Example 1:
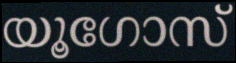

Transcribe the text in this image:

യൂഗോസ്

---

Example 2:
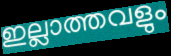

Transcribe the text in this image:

ഇല്ലാത്തവളും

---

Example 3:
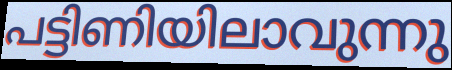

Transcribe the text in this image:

പട്ടിണിയിലാവുന്നു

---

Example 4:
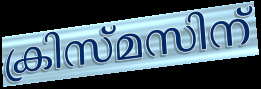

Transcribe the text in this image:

ക്രിസ്മസിന്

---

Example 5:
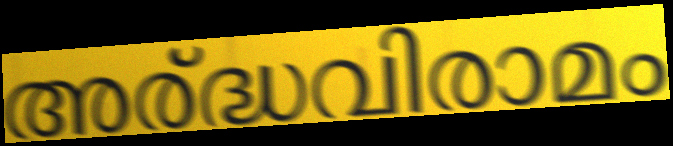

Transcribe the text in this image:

അര്ദ്ധവിരാമം